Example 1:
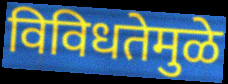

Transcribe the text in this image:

विविधतेमुळे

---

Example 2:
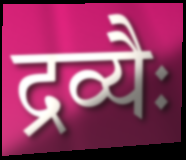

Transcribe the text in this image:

द्रव्यैः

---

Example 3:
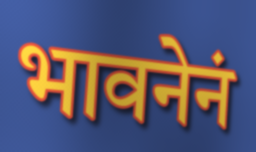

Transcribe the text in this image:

भावनेनं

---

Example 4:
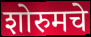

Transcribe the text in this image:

शोरुमचे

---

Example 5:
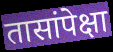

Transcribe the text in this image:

तासांपेक्षा